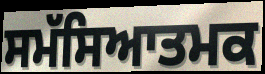
ਸਮੱਸਿਆਤਮਕ